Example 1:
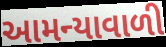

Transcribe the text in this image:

આમન્યાવાળી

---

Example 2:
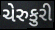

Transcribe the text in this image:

ચેરુકુરી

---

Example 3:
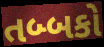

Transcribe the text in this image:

તબ્બકો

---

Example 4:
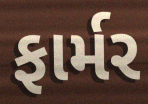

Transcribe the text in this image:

ફાર્મર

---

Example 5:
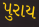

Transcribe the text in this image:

પુરાય